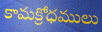
కామక్రోధములు